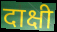
दाक्षी